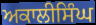
ਅਕਾਲੀਸਿੰਘ